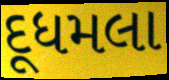
દૂધમલા